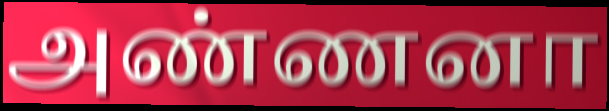
அண்ணனா